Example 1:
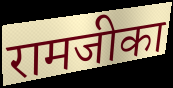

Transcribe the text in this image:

रामजीका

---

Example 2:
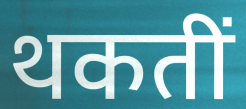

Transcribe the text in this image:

थकतीं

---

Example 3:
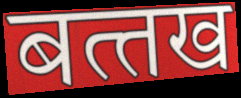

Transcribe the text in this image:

बत्‍तख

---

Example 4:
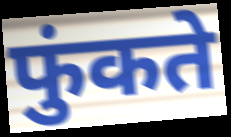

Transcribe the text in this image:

फुंकते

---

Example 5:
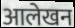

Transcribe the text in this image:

आलेखन